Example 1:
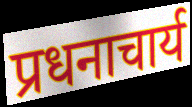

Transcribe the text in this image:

प्रधनाचार्य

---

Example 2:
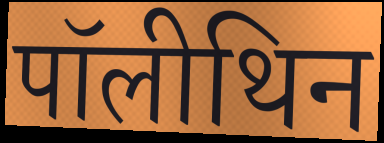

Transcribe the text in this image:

पॉलीथिन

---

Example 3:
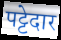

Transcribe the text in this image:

पट्टेदार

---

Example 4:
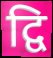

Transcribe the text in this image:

द्वि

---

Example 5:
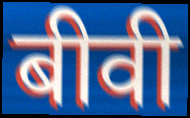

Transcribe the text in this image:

बीवी